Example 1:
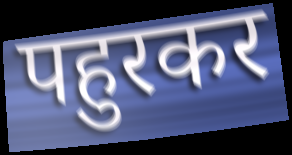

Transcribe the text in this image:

पहुरकर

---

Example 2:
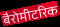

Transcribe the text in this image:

बैरोमीटरिक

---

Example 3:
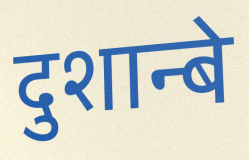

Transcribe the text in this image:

दुशान्बे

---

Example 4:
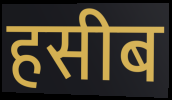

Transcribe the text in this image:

हसीब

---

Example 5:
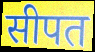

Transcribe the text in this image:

सीपत